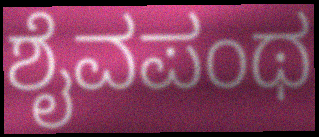
ಶೈವಪಂಥ